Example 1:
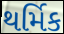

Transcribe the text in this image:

થર્મિક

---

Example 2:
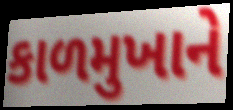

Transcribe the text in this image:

કાળમુખાને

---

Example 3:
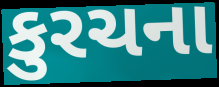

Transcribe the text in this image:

કુરચના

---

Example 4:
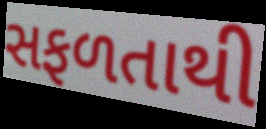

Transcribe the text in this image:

સફળતાથી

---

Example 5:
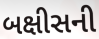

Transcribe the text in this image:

બક્ષીસની